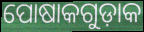
ପୋଷାକଗୁଡ଼ାକ